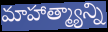
మాహాత్మ్యాన్ని